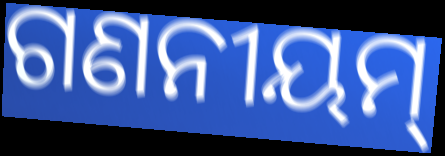
ଗଣନୀୟମ୍